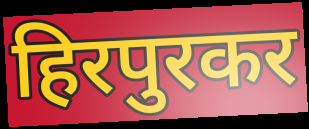
हिरपुरकर